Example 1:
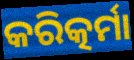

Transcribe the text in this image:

କରିତ୍କର୍ମା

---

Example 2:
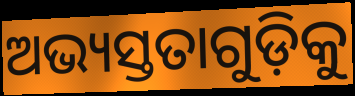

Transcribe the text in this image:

ଅଭ୍ୟସ୍ତତାଗୁଡ଼ିକୁ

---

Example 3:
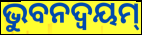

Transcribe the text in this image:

ଭୁବନଦ୍ଵୟମ୍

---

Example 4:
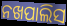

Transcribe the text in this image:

ନଖପାଲିସ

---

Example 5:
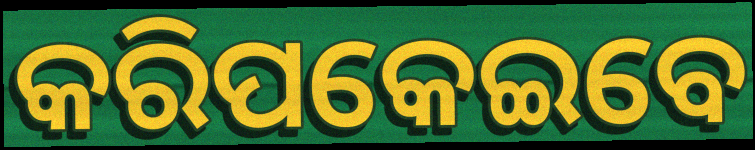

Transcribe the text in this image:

କରିପକେଇବେ